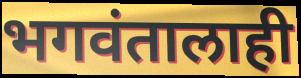
भगवंतालाही